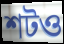
শটও